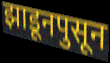
झाडूनपुसून